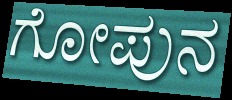
ಗೋಪುನ